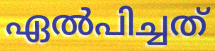
ഏൽപിച്ചത്